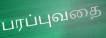
பரப்புவதை